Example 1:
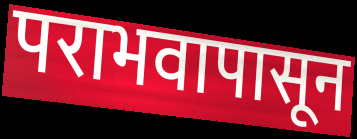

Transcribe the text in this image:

पराभवापासून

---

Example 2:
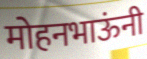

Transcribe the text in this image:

मोहनभाऊंनी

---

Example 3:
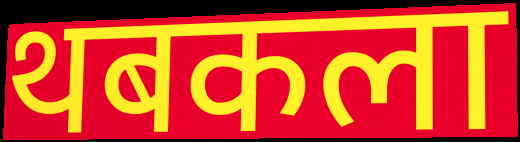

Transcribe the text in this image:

थबकला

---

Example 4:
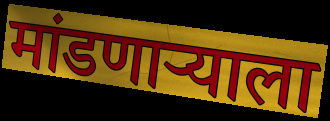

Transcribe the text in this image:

मांडणाऱ्याला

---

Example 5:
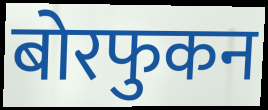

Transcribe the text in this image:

बोरफुकन